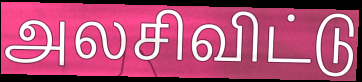
அலசிவிட்டு